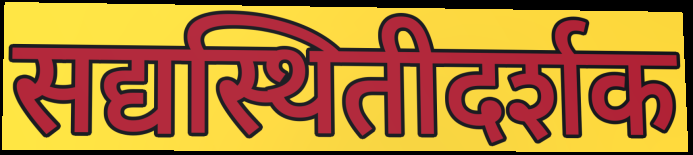
सद्यस्थितीदर्शक